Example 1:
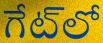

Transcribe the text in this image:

గేట్‌లో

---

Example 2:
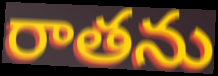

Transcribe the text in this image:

రాతను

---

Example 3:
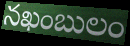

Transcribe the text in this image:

నఖంబులం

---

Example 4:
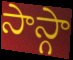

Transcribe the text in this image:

సాస్గా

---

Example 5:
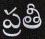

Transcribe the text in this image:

ప్రతీ